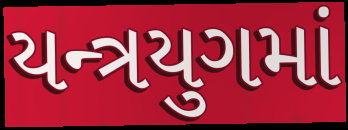
યન્ત્રયુગમાં